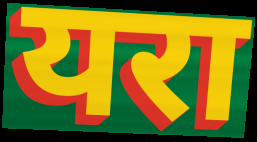
यरा